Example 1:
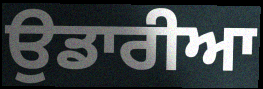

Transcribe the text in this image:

ਉਡਾਰੀਆ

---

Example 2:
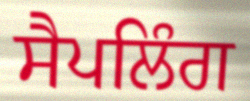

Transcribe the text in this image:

ਸੈਪਲਿੰਗ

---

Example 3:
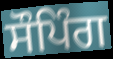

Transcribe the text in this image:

ਸੌਪਿੰਗ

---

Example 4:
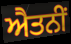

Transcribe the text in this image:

ਐਤਨੀਂ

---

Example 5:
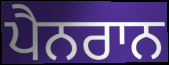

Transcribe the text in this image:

ਪੈਨਰਾਨ